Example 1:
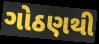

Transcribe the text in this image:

ગોઠણથી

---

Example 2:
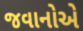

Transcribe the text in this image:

જવાનોએ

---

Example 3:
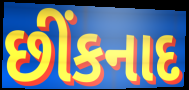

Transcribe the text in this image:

છીંકનાદ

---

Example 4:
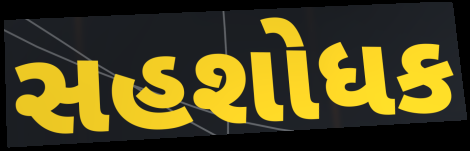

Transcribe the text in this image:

સહશોધક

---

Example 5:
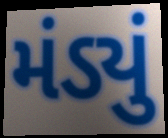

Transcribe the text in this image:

મંડ્યું